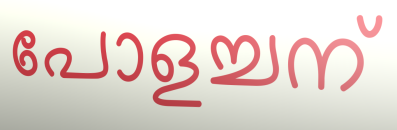
പോളച്ചന്